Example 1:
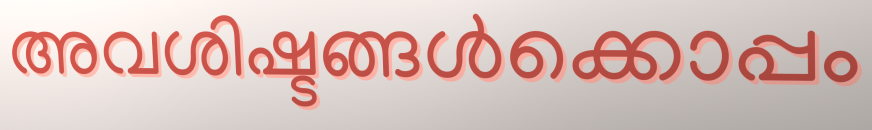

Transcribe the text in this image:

അവശിഷ്ടങ്ങൾക്കൊപ്പം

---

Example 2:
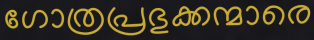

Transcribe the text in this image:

ഗോത്രപ്രഭുക്കന്മാരെ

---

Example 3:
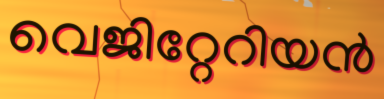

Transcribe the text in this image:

വെജിറ്റേറിയൻ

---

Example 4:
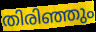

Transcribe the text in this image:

തിരിഞ്ഞും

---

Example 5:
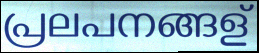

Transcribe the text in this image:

പ്രലപനങ്ങള്